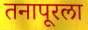
तनापूरला